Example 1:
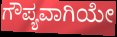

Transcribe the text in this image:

ಗೌಪ್ಯವಾಗಿಯೇ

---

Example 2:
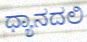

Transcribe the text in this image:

ಧ್ಯಾನದಲಿ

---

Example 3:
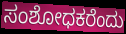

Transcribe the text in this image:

ಸಂಶೋಧಕರೆಂದು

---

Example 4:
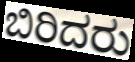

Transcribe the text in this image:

ಬಿರಿದರು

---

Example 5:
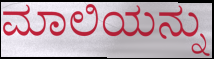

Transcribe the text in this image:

ಮಾಲಿಯನ್ನು